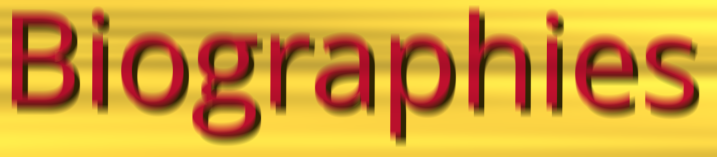
Biographies